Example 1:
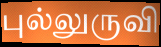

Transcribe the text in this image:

புல்லுருவி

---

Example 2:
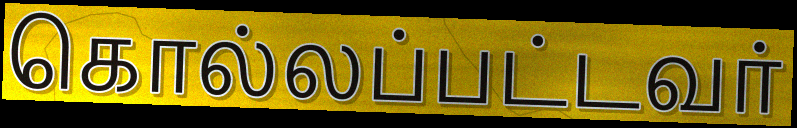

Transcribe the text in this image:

கொல்லப்பட்டவர்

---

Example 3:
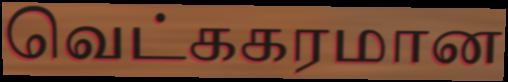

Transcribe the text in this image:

வெட்ககரமான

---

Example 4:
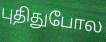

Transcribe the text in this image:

புதிதுபோல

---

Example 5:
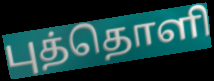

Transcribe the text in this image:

புத்தொளி